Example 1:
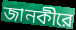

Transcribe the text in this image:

জানকীরে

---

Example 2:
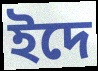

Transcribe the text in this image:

ইদে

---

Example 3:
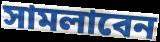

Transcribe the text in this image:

সামলাবেন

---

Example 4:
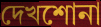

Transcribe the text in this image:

দেখশোনা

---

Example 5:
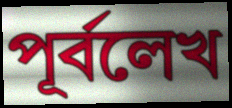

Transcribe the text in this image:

পূর্বলেখ